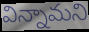
విన్నామని